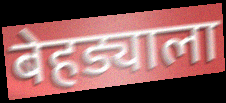
बेहड्याला